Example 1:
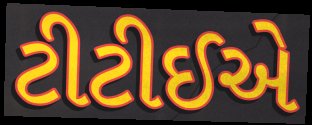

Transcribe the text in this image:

ટીટીઈએ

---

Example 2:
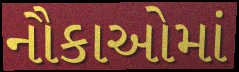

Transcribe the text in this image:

નૌકાઓમાં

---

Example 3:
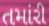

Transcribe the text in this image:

તમાંરી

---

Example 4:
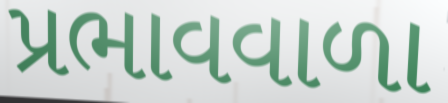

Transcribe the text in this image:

પ્રભાવવાળા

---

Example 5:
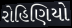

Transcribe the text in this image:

રોહિણિયો